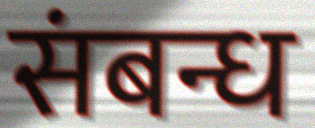
संबन्ध